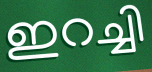
ഇറച്ചി